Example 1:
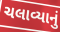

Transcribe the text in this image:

ચલાવ્યાનું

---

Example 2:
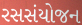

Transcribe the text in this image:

રસસંયોજન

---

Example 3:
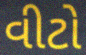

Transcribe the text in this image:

વીટો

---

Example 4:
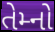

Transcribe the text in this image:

તેમ્નો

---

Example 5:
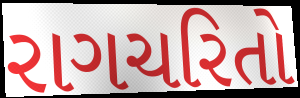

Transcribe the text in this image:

રાગચરિતો